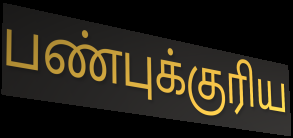
பண்புக்குரிய